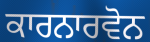
ਕਾਰਨਾਰਵੋਨ